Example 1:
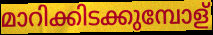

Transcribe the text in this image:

മാറിക്കിടക്കുമ്പോള്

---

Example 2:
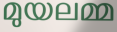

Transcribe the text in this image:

മുയലമ്മ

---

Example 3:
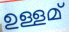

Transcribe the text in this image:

ഉള്ളമ്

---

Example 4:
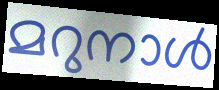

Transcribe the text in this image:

മറുനാൾ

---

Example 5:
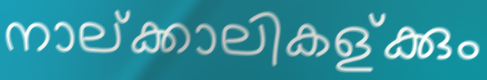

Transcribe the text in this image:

നാല്ക്കാലികള്ക്കും